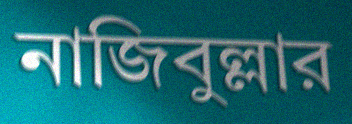
নাজিবুল্লার